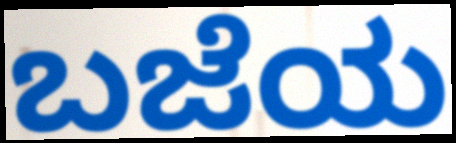
ಬಜೆಯ